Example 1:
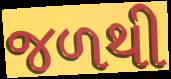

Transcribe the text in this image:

જળથી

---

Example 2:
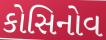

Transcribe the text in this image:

કોસિનોવ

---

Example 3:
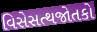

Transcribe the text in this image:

વિસેસત્થજોતકો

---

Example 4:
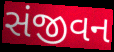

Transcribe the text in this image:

સંજીવન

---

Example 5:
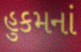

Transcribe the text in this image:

હુકમનાં